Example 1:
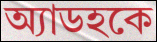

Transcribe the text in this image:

অ্যাডহকে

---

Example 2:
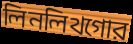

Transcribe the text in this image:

লিনলিথগোর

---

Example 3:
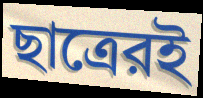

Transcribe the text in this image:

ছাত্রেরই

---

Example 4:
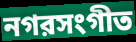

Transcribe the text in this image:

নগরসংগীত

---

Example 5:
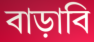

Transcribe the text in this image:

বাড়াবি